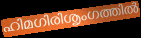
ഹിമഗിരിശൃംഗത്തിൽ